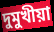
দুমুখীয়া